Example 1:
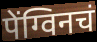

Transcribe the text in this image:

पेंग्विनचं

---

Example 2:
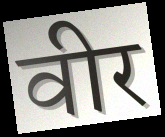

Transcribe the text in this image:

वीर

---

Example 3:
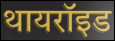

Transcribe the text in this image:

थायरॉइड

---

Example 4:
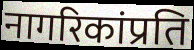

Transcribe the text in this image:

नागरिकांप्रति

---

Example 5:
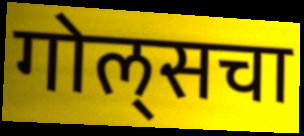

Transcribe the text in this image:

गोल्सचा